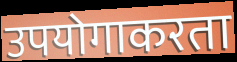
उपयोगाकरता